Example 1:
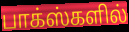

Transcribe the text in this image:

பாக்ஸ்களில்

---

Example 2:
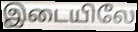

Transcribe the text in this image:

இடையிலே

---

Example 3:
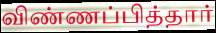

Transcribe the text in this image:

விண்ணப்பித்தார்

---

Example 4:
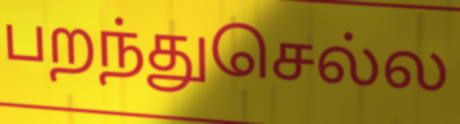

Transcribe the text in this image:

பறந்துசெல்ல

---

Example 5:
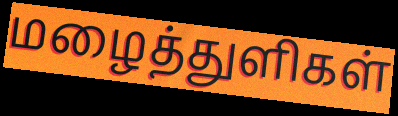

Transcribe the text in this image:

மழைத்துளிகள்